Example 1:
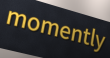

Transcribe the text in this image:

momently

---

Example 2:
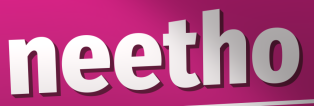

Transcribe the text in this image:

neetho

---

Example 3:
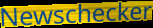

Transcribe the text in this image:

Newschecker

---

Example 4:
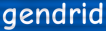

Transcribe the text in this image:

gendrid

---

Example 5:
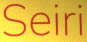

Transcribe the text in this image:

Seiri